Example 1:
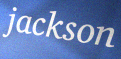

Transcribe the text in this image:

jackson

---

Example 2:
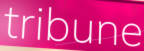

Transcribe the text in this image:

tribune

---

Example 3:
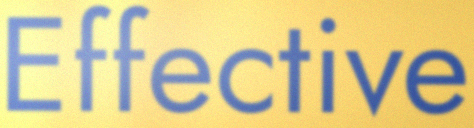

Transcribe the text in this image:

Effective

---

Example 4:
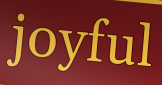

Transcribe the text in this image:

joyful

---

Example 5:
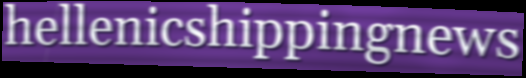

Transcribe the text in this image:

hellenicshippingnews